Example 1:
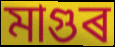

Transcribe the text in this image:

মাগুৰ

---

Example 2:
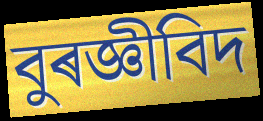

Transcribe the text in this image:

বুৰজ্ঞীবিদ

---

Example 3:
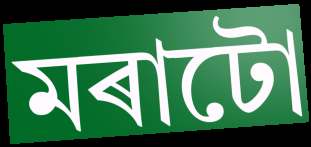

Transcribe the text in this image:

মৰাটো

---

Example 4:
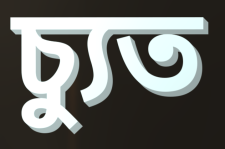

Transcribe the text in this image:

চ্যুত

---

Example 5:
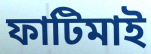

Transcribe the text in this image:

ফাটিমাই